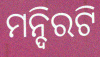
ମନ୍ଦିରଟି